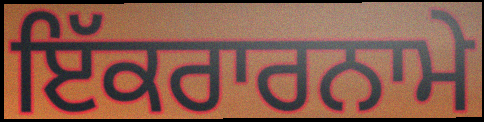
ਇੱਕਰਾਰਨਾਮੇ